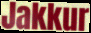
Jakkur